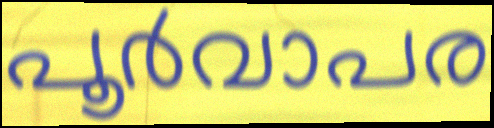
പൂർവാപര